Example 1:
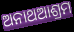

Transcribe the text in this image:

ଅନାଥଆଶ୍ରମ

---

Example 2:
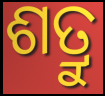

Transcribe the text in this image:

ଶତ୍ରୁ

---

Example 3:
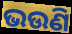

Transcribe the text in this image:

ଭଉଣି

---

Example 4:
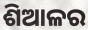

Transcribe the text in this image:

ଶିଆଳର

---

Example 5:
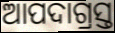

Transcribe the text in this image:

ଆପଦାଗ୍ରସ୍ତ